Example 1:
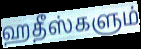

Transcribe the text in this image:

ஹதீஸ்களும்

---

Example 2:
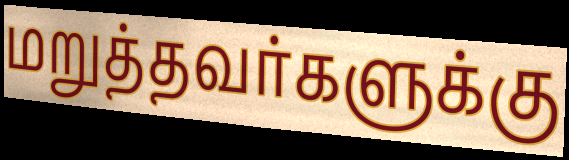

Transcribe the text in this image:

மறுத்தவர்களுக்கு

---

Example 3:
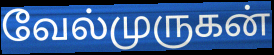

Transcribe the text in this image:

வேல்முருகன்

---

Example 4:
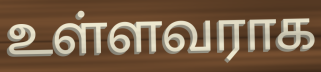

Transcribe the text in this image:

உள்ளவராக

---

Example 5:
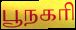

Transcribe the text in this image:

பூநகரி